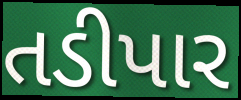
તડીપાર